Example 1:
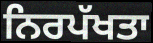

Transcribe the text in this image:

ਨਿਰਪੱਖਤਾ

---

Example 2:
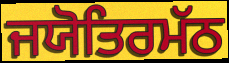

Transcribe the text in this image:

ਜਯੋਤਿਰਮੱਠ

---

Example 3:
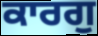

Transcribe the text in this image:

ਕਾਰਗੁ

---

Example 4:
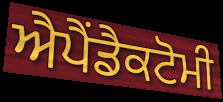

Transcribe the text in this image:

ਐਪੈਂਡੈਕਟੋਮੀ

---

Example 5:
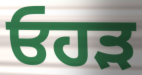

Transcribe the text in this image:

ਓਹੜ